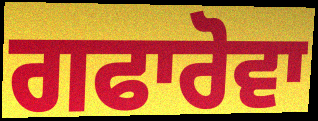
ਗਫਾਰੋਵਾ